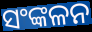
ସଂଙ୍କଳନ